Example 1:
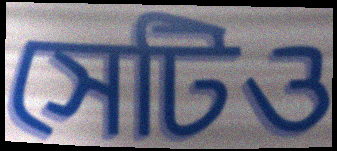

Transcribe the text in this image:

সেটিও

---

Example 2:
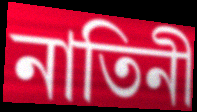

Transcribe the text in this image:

নাতিনী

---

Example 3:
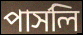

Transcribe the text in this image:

পার্সলি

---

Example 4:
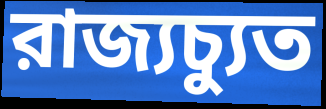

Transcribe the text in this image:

রাজ্যচ্যুত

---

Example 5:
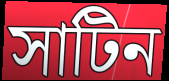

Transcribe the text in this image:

সাটিন